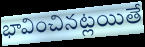
భావించినట్లయితే